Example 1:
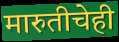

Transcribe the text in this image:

मारुतीचेही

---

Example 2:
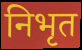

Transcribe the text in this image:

निभृत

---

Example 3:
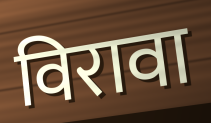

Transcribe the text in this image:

विरावा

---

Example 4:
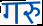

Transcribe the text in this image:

गरु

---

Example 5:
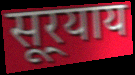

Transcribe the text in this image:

सूर्याय